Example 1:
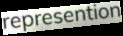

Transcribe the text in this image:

represention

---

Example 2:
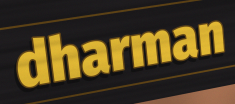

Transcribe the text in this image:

dharman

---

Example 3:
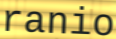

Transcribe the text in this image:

ranio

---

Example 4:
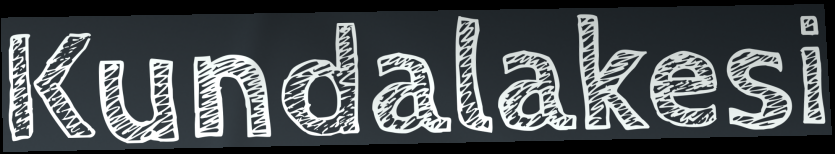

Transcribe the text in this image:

Kundalakesi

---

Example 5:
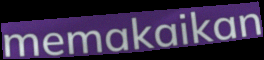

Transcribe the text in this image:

memakaikan